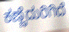
ಕಣ್ಣೆದುರಿಗಿದೆ